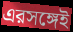
এরসঙ্গেই